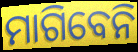
ମାଗିବେନି